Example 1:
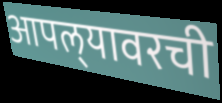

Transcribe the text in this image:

आपल्यावरची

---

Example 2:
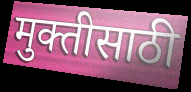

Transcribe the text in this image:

मुक्तीसाठी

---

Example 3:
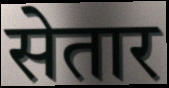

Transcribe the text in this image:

सेतार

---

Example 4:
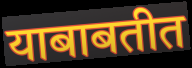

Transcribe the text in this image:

याबाबतीत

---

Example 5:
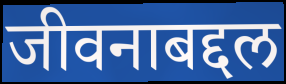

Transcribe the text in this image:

जीवनाबद्दल